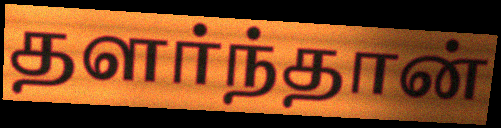
தளர்ந்தான்